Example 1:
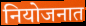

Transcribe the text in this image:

नियोजनात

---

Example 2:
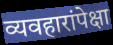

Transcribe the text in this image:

व्यवहारांपेक्षा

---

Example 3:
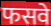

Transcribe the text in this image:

फसवे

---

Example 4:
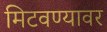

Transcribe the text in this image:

मिटवण्यावर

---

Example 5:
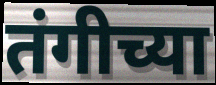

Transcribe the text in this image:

तंगीच्या